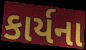
કાર્યના